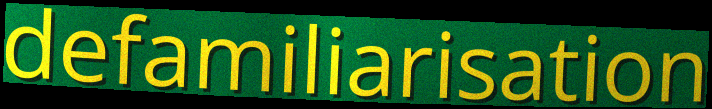
defamiliarisation